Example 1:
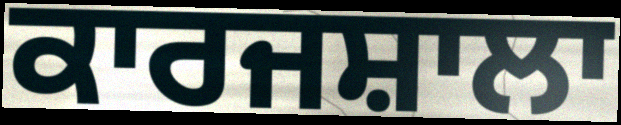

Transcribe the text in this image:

ਕਾਰਜਸ਼ਾਲਾ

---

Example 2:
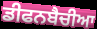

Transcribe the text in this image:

ਡੀਫਨਬੈਚੀਆ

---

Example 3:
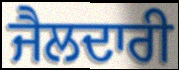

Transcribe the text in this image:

ਜੈਲਦਾਰੀ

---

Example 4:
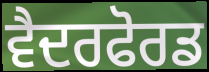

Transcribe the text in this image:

ਵੈਦਰਫੋਰਡ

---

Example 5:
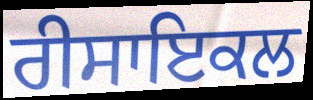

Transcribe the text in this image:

ਰੀਸਾਇਕਲ